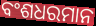
ବଂଶଧରମାନ